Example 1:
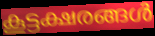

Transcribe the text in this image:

കൂട്ടക്ഷരങ്ങൾ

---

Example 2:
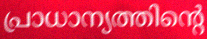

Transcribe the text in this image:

പ്രാധാന്യത്തിന്റെ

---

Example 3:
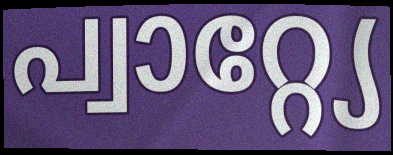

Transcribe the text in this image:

പ്വാറ്റ്യേ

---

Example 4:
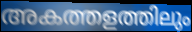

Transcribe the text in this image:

അകത്തളത്തിലും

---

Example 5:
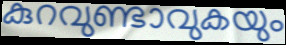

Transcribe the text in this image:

കുറവുണ്ടാവുകയും